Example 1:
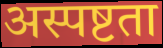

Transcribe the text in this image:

अस्पष्टता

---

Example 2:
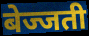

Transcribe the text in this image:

बेज्जती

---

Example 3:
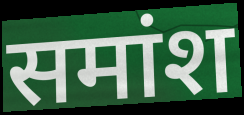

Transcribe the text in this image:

समांश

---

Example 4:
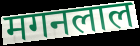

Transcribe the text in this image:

मगनलाल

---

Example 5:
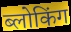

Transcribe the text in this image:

ब्लोकिंग